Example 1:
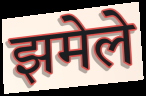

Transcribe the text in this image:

झमेले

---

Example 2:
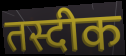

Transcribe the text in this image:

तस्दीक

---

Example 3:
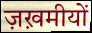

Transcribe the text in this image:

ज़ख़मीयों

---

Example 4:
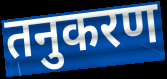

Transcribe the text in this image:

तनुकरण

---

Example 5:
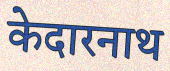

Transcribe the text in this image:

केदारनाथ